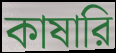
কাষারি